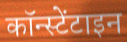
कॉन्स्टेंटाइन